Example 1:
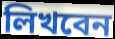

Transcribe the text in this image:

লিখবেন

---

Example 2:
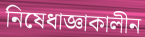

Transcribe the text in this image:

নিষেধাজ্ঞাকালীন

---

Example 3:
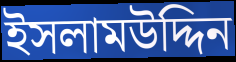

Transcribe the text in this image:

ইসলামউদ্দিন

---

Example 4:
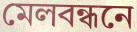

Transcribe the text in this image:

মেলবন্ধনে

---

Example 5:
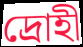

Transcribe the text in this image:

দ্রোহী